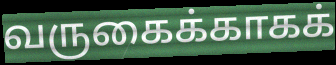
வருகைக்காகக்